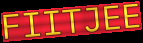
FIITJEE